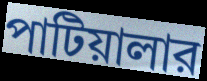
পাটিয়ালার